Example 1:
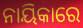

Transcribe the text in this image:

ନାୟିକାରେ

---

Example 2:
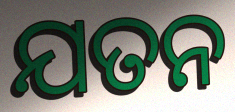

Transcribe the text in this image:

ଯତନ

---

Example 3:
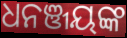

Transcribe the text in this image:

ଧନଞ୍ଜୟଙ୍କ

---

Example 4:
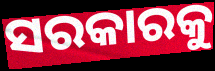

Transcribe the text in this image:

ସରକାରକୁ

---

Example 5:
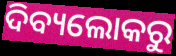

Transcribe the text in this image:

ଦିବ୍ୟଲୋକରୁ